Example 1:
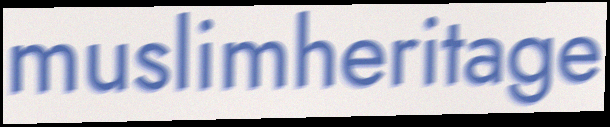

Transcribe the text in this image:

muslimheritage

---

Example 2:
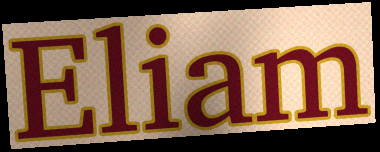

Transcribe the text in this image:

Eliam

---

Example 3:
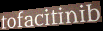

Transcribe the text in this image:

tofacitinib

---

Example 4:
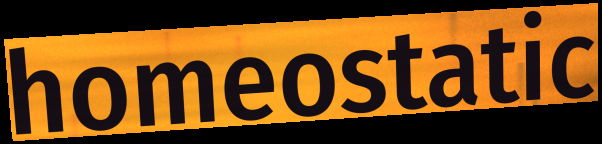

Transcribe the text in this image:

homeostatic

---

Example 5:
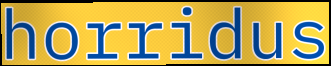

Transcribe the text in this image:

horridus